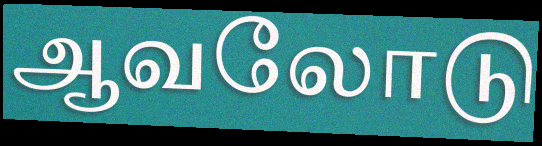
ஆவலோடு